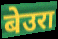
बेउरा